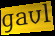
gaul